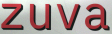
zuva